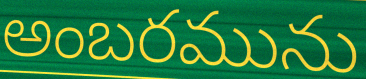
అంబరమును